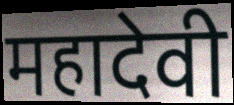
महादेवी